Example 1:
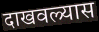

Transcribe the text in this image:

दाखवल्यास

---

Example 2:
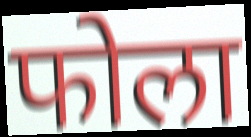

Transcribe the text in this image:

फोला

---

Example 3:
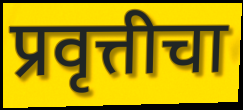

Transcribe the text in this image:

प्रवृत्तीचा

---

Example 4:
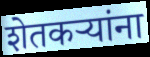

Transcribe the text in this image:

शेतकर्‍यांना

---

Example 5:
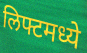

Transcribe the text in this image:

लिफ्टमध्ये